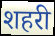
शहरी